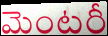
మెంటరీ